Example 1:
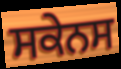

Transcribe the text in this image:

ਸਕੇਨਸ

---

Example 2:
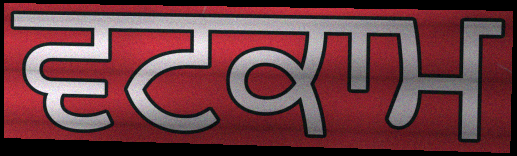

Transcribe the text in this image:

ਵਟਕਾਮ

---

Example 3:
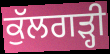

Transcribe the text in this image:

ਕੁੱਲਗੜ੍ਹੀ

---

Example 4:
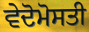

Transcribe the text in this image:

ਵੇਦੋਮੋਸਤੀ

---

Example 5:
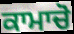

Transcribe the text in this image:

ਕਾਮਾਚੋ